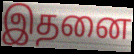
இதனை